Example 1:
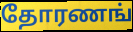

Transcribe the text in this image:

தோரணங்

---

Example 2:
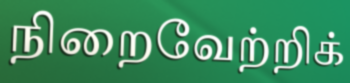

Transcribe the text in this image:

நிறைவேற்றிக்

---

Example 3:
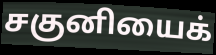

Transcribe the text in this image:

சகுனியைக்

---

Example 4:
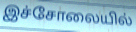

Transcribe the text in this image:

இச்சோலையில்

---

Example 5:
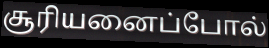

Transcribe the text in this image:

சூரியனைப்போல்